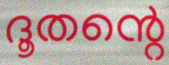
ദൂതന്റെ